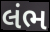
લંભ